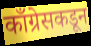
काँग्रेसकडून